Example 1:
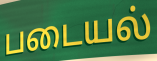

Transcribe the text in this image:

படையல்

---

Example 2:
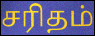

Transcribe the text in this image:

சரிதம்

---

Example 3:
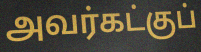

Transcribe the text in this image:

அவர்கட்குப்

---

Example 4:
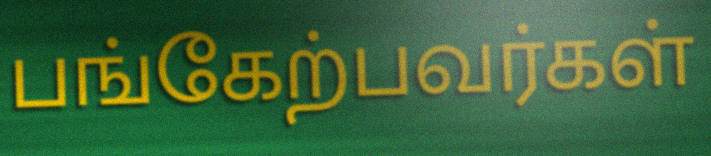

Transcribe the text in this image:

பங்கேற்பவர்கள்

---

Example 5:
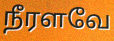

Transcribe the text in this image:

நீரளவே